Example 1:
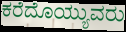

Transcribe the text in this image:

ಕರೆದೊಯ್ಯುವರು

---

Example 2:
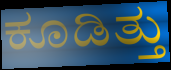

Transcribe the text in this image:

ಕೂಡಿತ್ತು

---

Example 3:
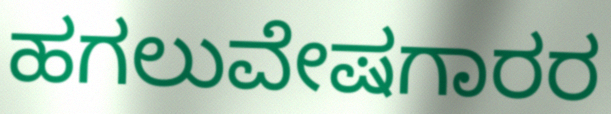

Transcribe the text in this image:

ಹಗಲುವೇಷಗಾರರ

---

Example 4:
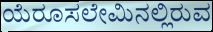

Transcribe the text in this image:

ಯೆರೂಸಲೇಮಿನಲ್ಲಿರುವ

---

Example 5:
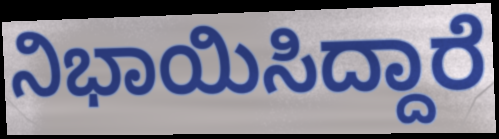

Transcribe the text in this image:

ನಿಭಾಯಿಸಿದ್ದಾರೆ